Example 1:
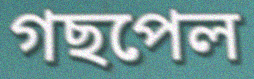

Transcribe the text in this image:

গছপেল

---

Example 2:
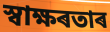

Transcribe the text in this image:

স্বাক্ষৰতাৰ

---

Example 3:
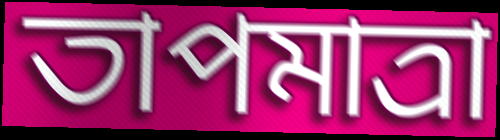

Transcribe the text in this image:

তাপমাত্ৰা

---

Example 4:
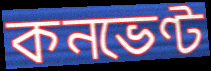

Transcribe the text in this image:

কনভেণ্ট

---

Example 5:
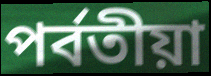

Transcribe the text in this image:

পৰ্বতীয়া